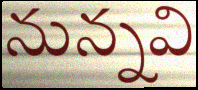
నున్నవి